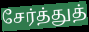
சேர்த்துத்